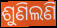
ଶୁଣିଲଣି